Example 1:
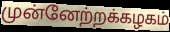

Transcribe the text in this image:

முன்னேற்றக்கழகம்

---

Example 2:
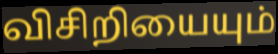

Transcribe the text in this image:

விசிறியையும்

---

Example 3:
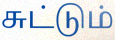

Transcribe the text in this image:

சுட்டும்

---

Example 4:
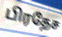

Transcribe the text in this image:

பிரதேச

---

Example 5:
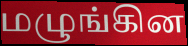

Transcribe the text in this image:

மழுங்கின